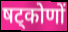
षट्कोणों